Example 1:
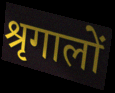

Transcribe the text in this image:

श्रृगालों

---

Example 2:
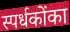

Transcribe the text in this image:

स्पर्धकोंका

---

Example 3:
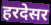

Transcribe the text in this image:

हरदेसर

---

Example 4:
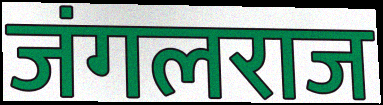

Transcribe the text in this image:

जंगलराज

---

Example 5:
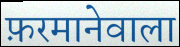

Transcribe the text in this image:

फ़रमानेवाला